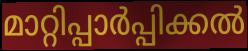
മാറ്റിപ്പാർപ്പിക്കൽ